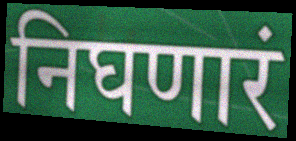
निघणारं